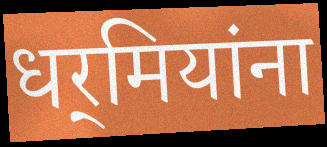
धर्मियांना